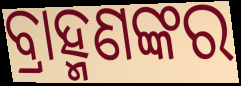
ବ୍ରାହ୍ମଣଙ୍କର